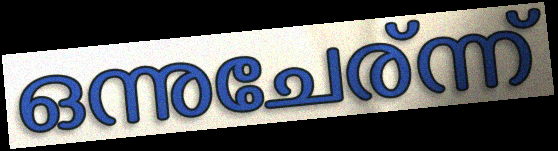
ഒന്നുചേര്ന്ന്